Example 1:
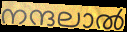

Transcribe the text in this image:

നന്ദലാൽ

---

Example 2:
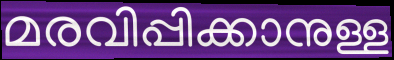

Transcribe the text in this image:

മരവിപ്പിക്കാനുള്ള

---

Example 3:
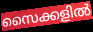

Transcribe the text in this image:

സൈക്കളിൽ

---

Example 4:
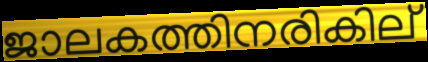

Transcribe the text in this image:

ജാലകത്തിനരികില്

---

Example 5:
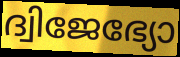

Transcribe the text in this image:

ദ്വിജേഭ്യോ